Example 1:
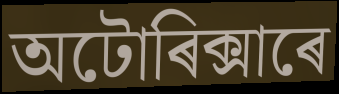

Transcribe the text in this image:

অটোৰিক্সাৰে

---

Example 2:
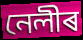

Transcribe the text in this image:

নেলীৰ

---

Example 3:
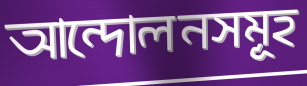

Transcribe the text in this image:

আন্দোলনসমূহ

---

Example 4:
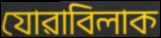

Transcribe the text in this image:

যোৱাবিলাক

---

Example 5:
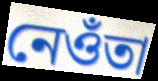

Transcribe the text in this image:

নেওঁতা